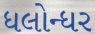
ધલોન્ધર